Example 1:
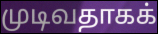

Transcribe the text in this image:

முடிவதாகக்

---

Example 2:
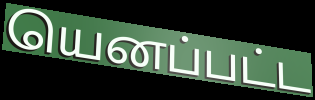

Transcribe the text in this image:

யெனப்பட்ட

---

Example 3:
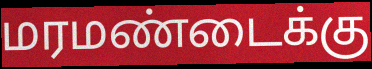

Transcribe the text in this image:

மரமண்டைக்கு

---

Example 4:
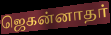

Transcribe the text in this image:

ஜெகன்னாதர்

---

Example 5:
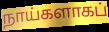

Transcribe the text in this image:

நாய்களாகப்